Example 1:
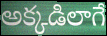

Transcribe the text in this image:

అక్కడిలాగే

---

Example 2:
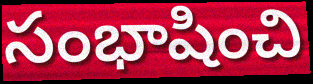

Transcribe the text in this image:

సంభాషించి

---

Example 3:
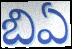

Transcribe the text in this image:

బిఏ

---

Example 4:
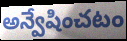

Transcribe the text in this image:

అన్వేషించటం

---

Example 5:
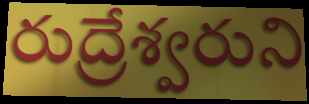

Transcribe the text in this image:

రుద్రేశ్వరుని